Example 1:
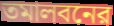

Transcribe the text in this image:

তমালবনের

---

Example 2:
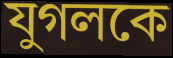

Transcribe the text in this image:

যুগলকে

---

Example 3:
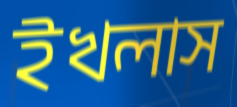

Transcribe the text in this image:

ইখলাস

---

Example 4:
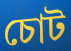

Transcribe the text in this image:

চোট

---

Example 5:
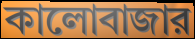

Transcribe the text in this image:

কালোবাজার